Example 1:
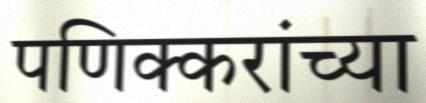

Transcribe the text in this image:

पणिक्करांच्या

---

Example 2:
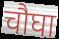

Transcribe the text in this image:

चौघा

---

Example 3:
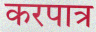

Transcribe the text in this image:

करपात्र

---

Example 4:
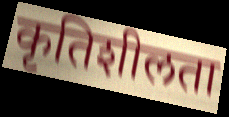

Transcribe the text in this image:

कृतिशीलता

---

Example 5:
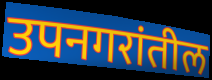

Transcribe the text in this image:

उपनगरांतील